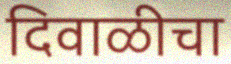
दिवाळीचा